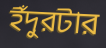
ইঁদুরটার